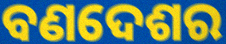
ବଣଦେଶର